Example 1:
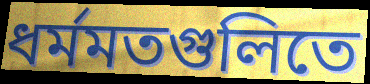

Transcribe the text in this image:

ধর্মমতগুলিতে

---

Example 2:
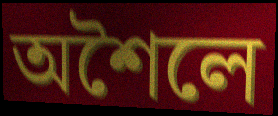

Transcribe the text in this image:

অশৈলে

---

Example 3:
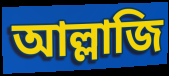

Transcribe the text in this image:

আল্লাজি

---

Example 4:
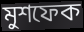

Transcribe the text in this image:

মুশফেক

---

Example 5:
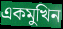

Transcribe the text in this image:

একমুখিন